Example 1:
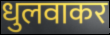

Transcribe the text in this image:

धुलवाकर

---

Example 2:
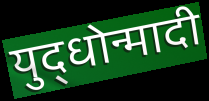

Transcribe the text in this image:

युद्धोन्मादी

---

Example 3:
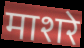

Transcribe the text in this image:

माशरे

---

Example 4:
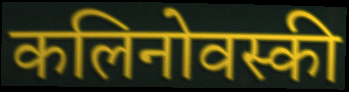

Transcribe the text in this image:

कलिनोवस्की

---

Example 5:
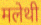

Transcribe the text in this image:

मलेथी